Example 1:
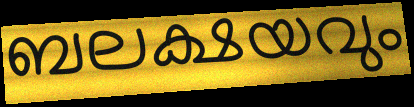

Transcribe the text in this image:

ബലക്ഷയവും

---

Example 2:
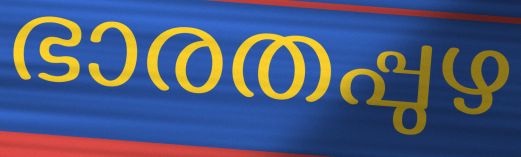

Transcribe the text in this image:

ഭാരതപ്പുഴ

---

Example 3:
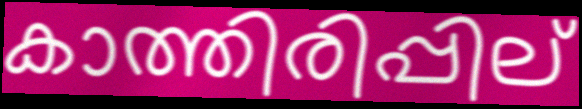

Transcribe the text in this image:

കാത്തിരിപ്പില്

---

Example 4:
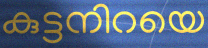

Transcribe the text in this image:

കുട്ടനിറയെ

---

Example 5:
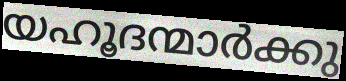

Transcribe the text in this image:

യഹൂദന്മാർക്കു